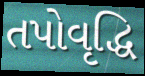
તપોવૃદ્ધિ